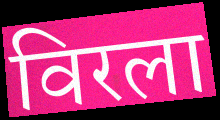
विरला